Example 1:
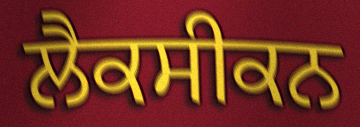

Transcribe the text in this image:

ਲੈਕਸੀਕਨ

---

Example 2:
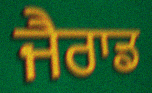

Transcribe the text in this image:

ਜੈਰਾਡ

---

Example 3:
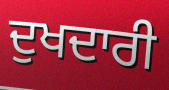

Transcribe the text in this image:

ਦੁਖਦਾਰੀ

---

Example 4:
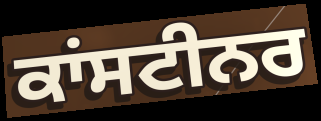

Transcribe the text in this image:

ਕਾਂਸਟੀਨਰ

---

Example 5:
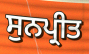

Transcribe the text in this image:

ਸੁਨਪ੍ਰੀਤ